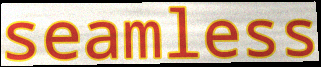
seamless